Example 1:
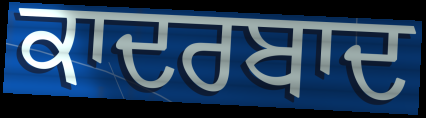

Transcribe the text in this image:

ਕਾਦਰਬਾਦ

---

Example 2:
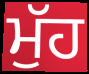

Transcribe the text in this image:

ਮੁੱਹ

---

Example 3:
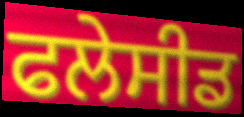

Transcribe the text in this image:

ਫਲੇਸੀਡ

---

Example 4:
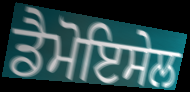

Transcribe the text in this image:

ਡੈਮੋਇਸੇਲ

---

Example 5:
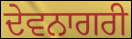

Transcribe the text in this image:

ਦੇਵਨਾਗਰੀ